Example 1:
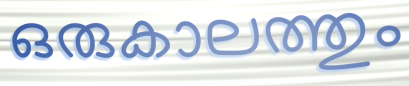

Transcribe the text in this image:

ഒരുകാലത്തും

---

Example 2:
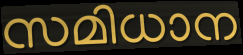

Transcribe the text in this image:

സമിധാന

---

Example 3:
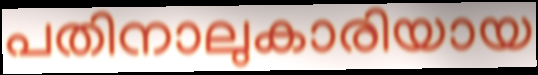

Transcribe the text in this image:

പതിനാലുകാരിയായ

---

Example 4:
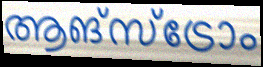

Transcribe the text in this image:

ആങ്സ്ട്രോം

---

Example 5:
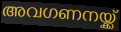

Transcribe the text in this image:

അവഗണനയ്ക്ക്